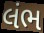
લંભ